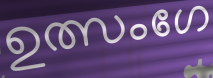
ഉത്സംഗേ